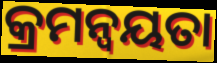
କ୍ରମନ୍ବୟତା